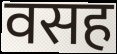
वसह